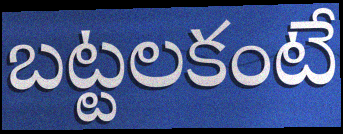
బట్టలకంటే